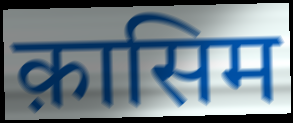
क़ासिम